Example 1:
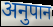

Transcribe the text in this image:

अनुपान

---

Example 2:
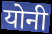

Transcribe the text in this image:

योनी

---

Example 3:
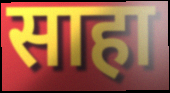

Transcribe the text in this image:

साहा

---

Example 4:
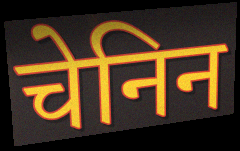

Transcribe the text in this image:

चेनिन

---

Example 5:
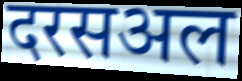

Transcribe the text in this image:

दरसअल